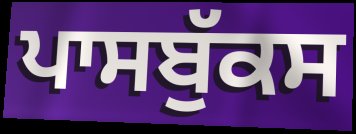
ਪਾਸਬੁੱਕਸ